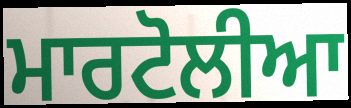
ਮਾਰਟੋਲੀਆ